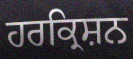
ਹਰਕ੍ਰਿਸ਼ਨ